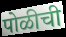
पोळीची